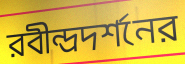
রবীন্দ্রদর্শনের